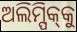
ଅଲିମ୍ପିକ୍‌କୁ